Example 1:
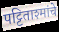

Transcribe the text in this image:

पट्टिताश्मांचे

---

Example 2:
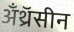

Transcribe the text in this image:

अँथ्रॅसीन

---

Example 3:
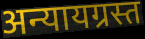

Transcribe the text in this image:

अन्यायग्रस्त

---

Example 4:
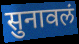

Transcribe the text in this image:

सुनावलं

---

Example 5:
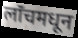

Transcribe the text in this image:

लॉंचमधून